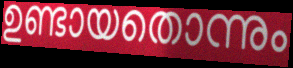
ഉണ്ടായതൊന്നും